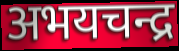
अभयचन्द्र